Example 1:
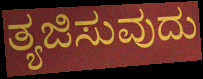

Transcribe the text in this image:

ತ್ಯಜಿಸುವುದು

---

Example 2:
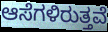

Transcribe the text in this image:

ಆಸೆಗಳಿರುತ್ತವೆ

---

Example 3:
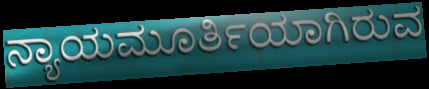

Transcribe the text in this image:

ನ್ಯಾಯಮೂರ್ತಿಯಾಗಿರುವ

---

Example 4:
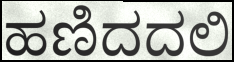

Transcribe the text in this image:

ಹಣಿದದಲಿ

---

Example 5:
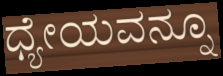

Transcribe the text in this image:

ಧ್ಯೇಯವನ್ನೂ